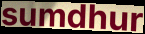
sumdhur